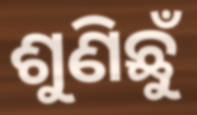
ଶୁଣିଛୁଁ